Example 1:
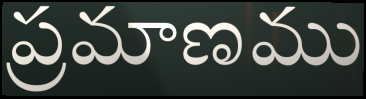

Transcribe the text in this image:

ప్రమాణము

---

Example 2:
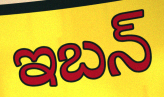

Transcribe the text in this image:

ఇబన్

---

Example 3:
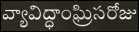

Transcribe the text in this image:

వ్యావిద్ధాంఘ్రిసరోజు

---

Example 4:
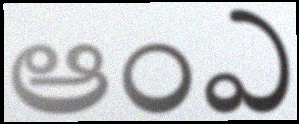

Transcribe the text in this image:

ఆంఎ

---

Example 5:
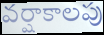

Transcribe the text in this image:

వర్షాకాలపు